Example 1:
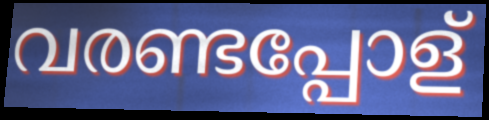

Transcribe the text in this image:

വരണ്ടപ്പോള്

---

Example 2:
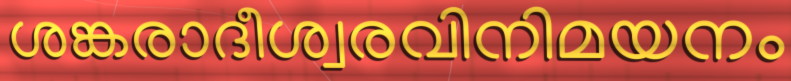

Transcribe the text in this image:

ശങ്കരാദീശ്വരവിനിമയനം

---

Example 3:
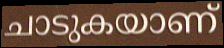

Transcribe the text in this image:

ചാടുകയാണ്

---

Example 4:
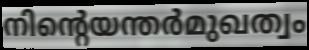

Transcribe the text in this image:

നിന്റെയന്തർമുഖത്വം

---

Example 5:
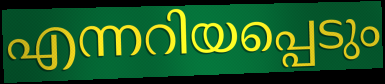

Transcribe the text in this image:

എന്നറിയപ്പെടും